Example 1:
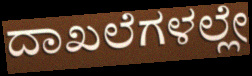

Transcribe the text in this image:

ದಾಖಲೆಗಳಲ್ಲೇ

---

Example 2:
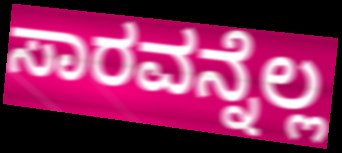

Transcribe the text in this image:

ಸಾರವನ್ನೆಲ್ಲ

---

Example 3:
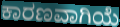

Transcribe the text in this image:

ಕಾರಣವಾಗಿಯೆ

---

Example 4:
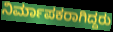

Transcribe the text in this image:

ನಿರ್ಮಾಪಕರಾಗಿದ್ದರು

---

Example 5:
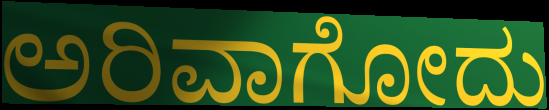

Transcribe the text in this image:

ಅರಿವಾಗೋದು